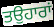
ਤਉਹਾਰਾਂ